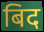
बिद